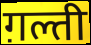
ग़ल्ती